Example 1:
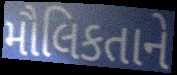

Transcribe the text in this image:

મૌલિકતાને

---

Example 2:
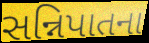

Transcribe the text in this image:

સન્નિપાતના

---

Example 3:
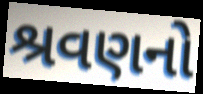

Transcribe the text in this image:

શ્રવણનો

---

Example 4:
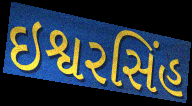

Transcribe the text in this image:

ઇશ્વરસિંહ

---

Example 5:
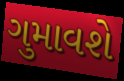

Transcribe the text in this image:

ગુમાવશે